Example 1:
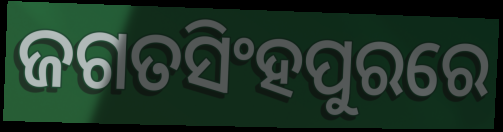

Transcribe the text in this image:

ଜଗତସିଂହପୁରରେ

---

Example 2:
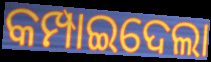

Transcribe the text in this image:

କମ୍ପାଇଦେଲା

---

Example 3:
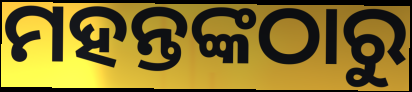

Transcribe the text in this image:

ମହନ୍ତଙ୍କଠାରୁ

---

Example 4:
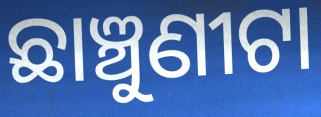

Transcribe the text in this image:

ଛାଞ୍ଚୁଣୀଟା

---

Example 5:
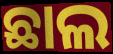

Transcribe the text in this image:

ଛାଲ